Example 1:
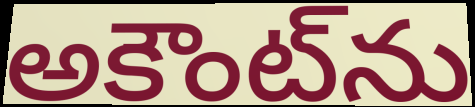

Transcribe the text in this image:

అకౌంట్‌ను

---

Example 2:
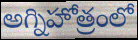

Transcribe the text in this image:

అగ్నిహోత్రంలో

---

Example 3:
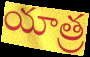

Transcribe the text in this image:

యాత్ర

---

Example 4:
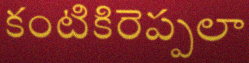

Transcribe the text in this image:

కంటికిరెప్పలా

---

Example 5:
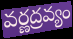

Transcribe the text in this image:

వర్ణద్రవ్యం